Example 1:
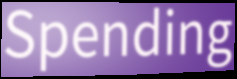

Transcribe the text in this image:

Spending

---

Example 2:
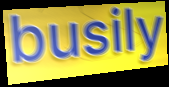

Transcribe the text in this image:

busily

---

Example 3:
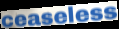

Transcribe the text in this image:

ceaseless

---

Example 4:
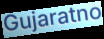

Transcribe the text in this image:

Gujaratno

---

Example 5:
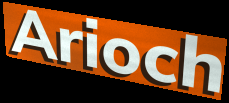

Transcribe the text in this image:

Arioch